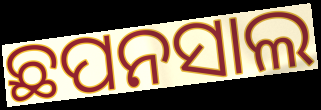
ଛପନସାଲ